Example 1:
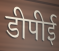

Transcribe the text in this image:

डीपीई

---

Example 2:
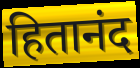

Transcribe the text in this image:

हितानंद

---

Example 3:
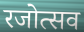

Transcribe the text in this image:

रजोत्सव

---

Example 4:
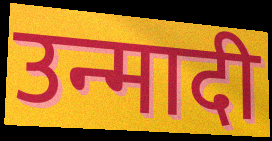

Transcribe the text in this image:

उन्मादी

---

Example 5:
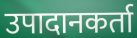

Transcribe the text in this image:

उपादानकर्ता